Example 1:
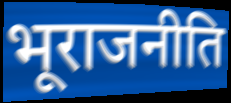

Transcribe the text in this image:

भूराजनीति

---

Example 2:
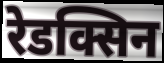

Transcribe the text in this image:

रेडक्सिन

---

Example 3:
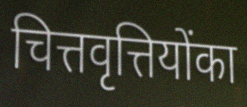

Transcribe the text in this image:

चित्तवृत्तियोंका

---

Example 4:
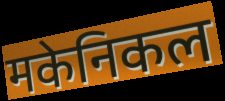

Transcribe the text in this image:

मकेनिकल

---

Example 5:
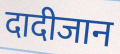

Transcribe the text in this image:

दादीजान